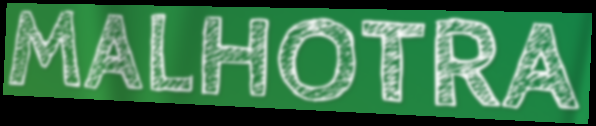
MALHOTRA